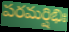
పరమర్షిభిః